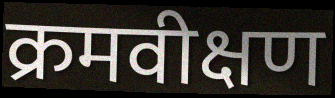
क्रमवीक्षण